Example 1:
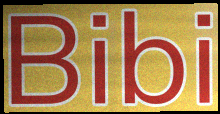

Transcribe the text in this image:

Bibi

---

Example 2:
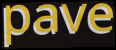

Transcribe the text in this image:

pave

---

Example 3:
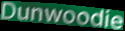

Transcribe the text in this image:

Dunwoodie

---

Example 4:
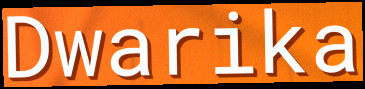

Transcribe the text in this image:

Dwarika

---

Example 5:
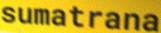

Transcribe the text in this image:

sumatrana